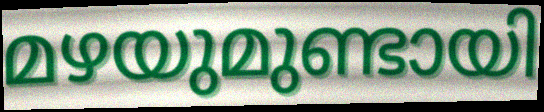
മഴയുമുണ്ടായി